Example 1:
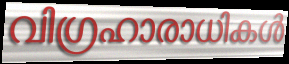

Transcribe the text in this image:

വിഗ്രഹാരാധികൾ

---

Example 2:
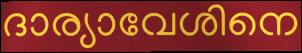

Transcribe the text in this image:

ദാര്യാവേശിനെ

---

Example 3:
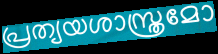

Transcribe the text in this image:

പ്രത്യയശാസ്ത്രമോ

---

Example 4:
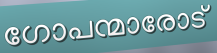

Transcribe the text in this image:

ഗോപന്മാരോട്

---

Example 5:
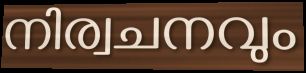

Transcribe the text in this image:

നിര്വചനവും